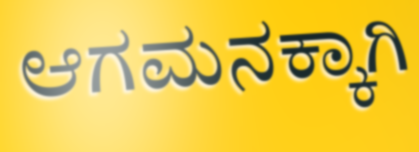
ಆಗಮನಕ್ಕಾಗಿ